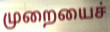
முறையைச்